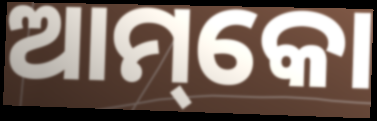
ଆମ୍‌କୋ